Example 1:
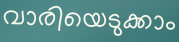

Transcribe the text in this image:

വാരിയെടുക്കാം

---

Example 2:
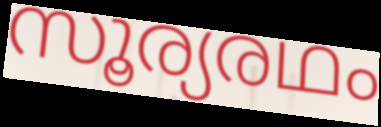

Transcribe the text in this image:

സൂര്യരഥം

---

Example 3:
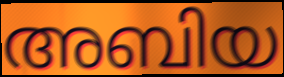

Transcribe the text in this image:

അബിയ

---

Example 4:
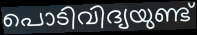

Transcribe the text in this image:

പൊടിവിദ്യയുണ്ട്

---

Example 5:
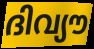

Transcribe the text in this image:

ദിവ്യൗ